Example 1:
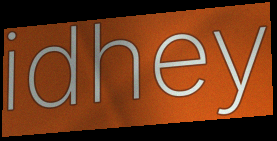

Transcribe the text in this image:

idhey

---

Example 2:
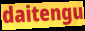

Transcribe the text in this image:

daitengu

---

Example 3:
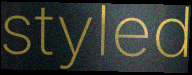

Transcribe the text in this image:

styled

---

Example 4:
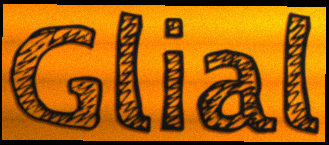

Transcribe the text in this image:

Glial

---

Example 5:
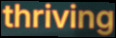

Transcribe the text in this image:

thriving